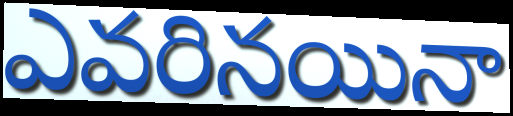
ఎవరినయినా